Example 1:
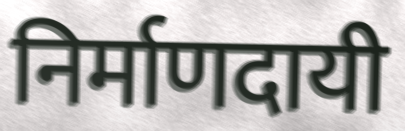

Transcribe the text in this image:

निर्माणदायी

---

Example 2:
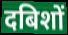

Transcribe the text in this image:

दबिशों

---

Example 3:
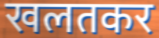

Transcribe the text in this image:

खलतकर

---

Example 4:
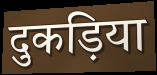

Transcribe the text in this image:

दुकड़िया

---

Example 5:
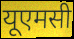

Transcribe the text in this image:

यूएमसी